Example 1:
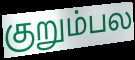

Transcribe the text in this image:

குறும்பல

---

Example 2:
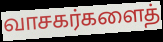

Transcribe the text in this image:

வாசகர்களைத்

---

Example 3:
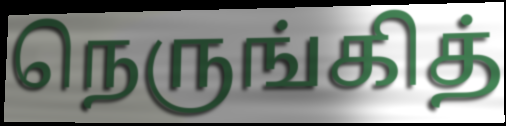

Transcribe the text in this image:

நெருங்கித்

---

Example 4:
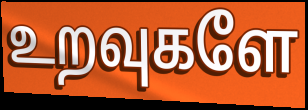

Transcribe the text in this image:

உறவுகளே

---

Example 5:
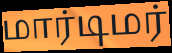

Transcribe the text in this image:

மார்டிமர்